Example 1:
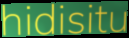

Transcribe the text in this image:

hidisitu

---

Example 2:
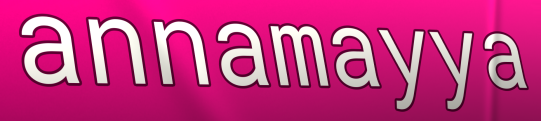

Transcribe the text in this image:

annamayya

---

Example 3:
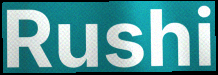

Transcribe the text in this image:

Rushi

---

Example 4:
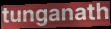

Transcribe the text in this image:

tunganath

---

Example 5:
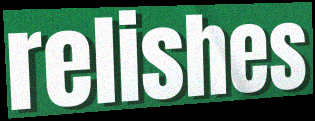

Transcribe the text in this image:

relishes